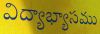
విద్యాభ్యాసము